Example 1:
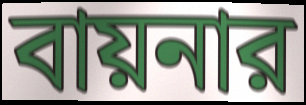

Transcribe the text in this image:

বায়নার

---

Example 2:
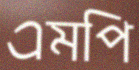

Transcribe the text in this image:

এমপি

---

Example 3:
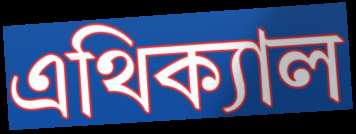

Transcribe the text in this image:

এথিক্যাল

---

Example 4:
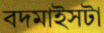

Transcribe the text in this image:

বদমাইসটা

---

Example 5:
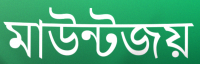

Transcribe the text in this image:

মাউন্টজয়